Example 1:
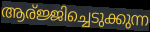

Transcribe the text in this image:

ആര്ജ്ജിച്ചെടുക്കുന്ന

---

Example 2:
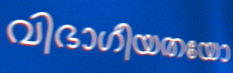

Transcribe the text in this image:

വിഭാഗീയതയോ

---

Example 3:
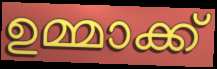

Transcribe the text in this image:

ഉമ്മാക്ക്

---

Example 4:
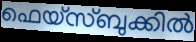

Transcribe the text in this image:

ഫെയ്സ്ബുക്കിൽ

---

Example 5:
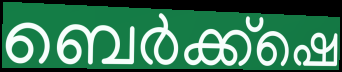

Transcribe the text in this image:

ബെർക്ക്ഷെ